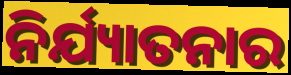
ନିର୍ଯ୍ୟାତନାର